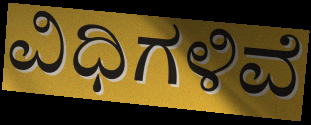
ವಿಧಿಗಳಿವೆ